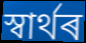
স্বাৰ্থৰ